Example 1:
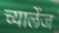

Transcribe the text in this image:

च्यालेंज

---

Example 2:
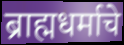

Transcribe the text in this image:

ब्राह्मधर्माचे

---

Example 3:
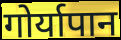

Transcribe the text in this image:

गोर्यापान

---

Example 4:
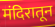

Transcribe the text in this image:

मंदिरातून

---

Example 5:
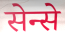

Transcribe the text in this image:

सेन्से